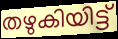
തഴുകിയിട്ട്